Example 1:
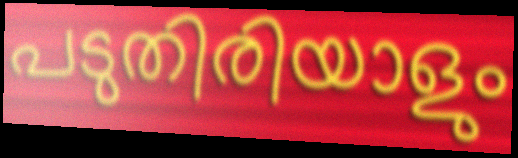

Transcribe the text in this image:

പടുതിരിയാളും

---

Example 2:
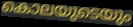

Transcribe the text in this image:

കൊലയുടെയും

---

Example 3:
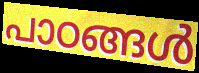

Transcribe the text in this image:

പാഠങ്ങൾ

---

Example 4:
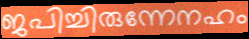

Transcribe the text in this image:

ജപിച്ചിരുന്നേനഹം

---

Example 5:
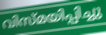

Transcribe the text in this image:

വിസ്മയിപ്പിച്ചു